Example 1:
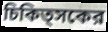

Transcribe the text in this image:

চিকিত্সকের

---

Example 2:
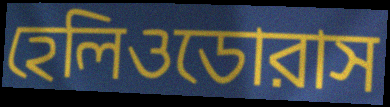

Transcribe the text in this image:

হেলিওডোরাস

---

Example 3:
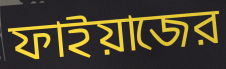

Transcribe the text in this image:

ফাইয়াজের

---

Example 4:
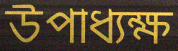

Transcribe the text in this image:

উপাধ্যক্ষ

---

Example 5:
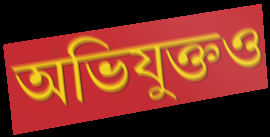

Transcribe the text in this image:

অভিযুক্তও